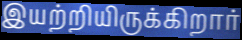
இயற்றியிருக்கிறார்